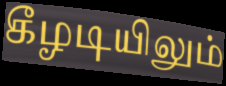
கீழடியிலும்